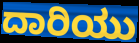
ದಾರಿಯು